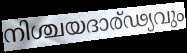
നിശ്ചയദാര്ഢ്യവും